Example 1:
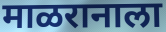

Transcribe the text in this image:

माळरानाला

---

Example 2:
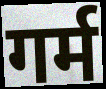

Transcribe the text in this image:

गर्म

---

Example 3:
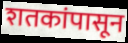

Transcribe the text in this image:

शतकांपासून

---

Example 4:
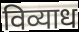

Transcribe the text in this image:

विव्याध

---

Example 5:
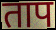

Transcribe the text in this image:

ताप